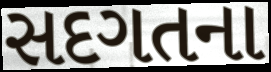
સદગતના